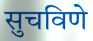
सुचविणे